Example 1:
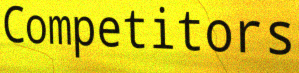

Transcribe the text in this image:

Competitors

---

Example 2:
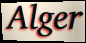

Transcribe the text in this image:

Alger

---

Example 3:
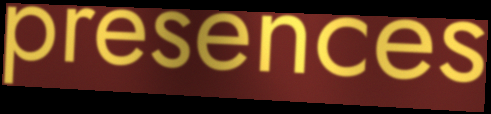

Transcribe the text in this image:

presences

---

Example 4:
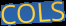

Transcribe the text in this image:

COLS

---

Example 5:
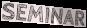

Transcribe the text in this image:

SEMINAR